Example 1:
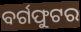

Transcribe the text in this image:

ବର୍ଗଫୁଟର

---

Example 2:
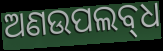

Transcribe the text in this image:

ଅଣଉପଲବ୍‌ଧ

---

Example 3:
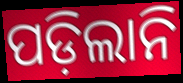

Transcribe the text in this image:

ପଡ଼ିଲାନି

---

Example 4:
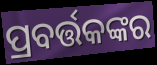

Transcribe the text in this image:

ପ୍ରବର୍ତ୍ତକଙ୍କର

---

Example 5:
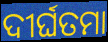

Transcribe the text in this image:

ଦୀର୍ଘତମା